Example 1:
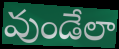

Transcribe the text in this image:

వుండేలా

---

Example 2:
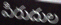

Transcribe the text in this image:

పిరుదుల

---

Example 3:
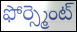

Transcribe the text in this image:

ఫోర్స్మెంట్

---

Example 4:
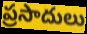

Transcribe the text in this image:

ప్రసాదులు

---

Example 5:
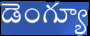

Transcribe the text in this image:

డెంగ్యూ